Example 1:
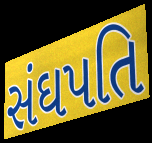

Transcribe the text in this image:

સંઘપતિ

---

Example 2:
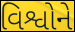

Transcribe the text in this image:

વિશ્વોને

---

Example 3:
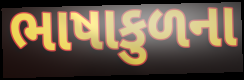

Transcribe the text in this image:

ભાષાકુળના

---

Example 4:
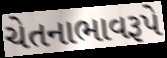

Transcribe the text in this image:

ચેતનાભાવરૂપે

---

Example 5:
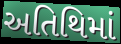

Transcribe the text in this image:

અતિથિમાં